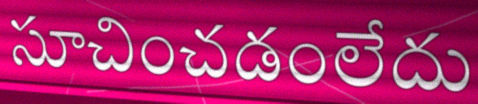
సూచించడంలేదు